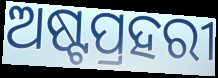
ଅଷ୍ଟପ୍ରହରୀ